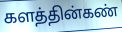
களத்தின்கண்